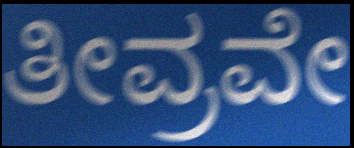
ತೀವ್ರವೇ